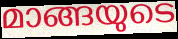
മാങ്ങയുടെ